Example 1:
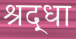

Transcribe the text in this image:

श्रद्धा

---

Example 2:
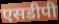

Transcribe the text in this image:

एसडीपी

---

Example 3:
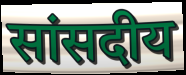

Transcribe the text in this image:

सांसदीय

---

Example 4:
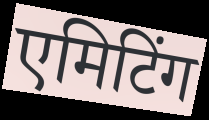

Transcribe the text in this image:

एमिटिंग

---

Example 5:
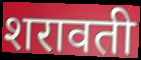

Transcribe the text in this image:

शरावती